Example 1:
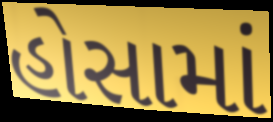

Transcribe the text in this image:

હોસામાં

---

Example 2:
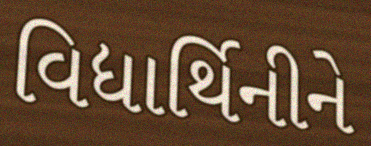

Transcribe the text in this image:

વિદ્યાર્થિનીને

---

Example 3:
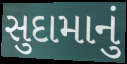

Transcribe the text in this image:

સુદામાનું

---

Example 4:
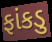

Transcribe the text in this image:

ફાંકડુ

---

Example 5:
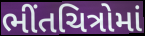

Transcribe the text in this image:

ભીંતચિત્રોમાં